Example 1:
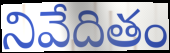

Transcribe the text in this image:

నివేదితం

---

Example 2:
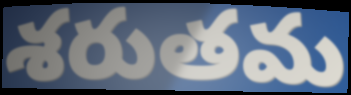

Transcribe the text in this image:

శరుతమ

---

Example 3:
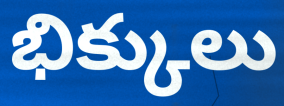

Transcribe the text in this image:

భిక్కులు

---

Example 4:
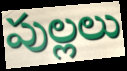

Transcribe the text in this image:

పుల్లలు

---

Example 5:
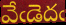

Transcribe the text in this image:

వేఁడెదఁ